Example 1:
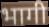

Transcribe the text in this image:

भागी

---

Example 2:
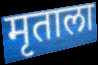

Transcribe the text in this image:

मृताला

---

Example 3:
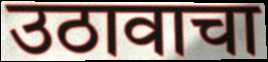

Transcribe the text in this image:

उठावाचा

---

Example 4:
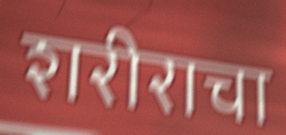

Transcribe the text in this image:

शरीराचा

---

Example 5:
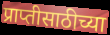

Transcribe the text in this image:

प्राप्तीसाठीच्या